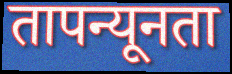
तापन्यूनता